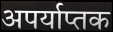
अपर्याप्तक